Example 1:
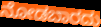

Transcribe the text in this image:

ನೋಡಬಾರದು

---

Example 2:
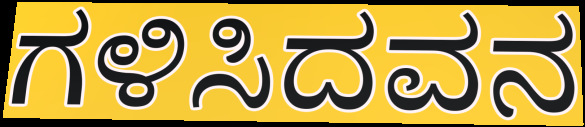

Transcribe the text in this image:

ಗಳಿಸಿದವನ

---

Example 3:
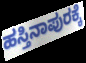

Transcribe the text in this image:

ಹಸ್ತಿನಾಪುರಕ್ಕೆ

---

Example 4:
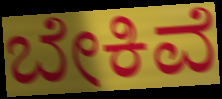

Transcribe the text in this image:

ಬೇಕಿವೆ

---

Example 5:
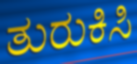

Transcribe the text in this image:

ತುರುಕಿಸಿ